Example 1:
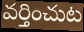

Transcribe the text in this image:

వర్తించుట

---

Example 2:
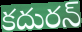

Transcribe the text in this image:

కదురన్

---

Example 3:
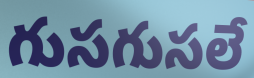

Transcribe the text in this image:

గుసగుసలే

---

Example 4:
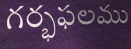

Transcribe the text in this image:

గర్భఫలము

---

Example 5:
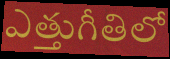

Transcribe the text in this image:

ఎత్తుగీతిలో